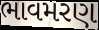
ભાવમરણ